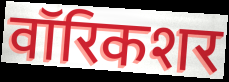
वॉरिकशर